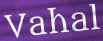
Vahal